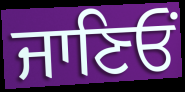
ਜਾਣਿਓਂ